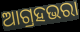
ଆଗ୍ରହଭରା